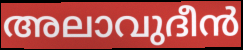
അലാവുദീൻ